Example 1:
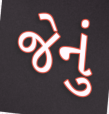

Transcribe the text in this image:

જેનું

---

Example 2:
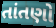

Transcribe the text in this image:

તાંતણો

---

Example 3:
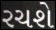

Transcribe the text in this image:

રચશે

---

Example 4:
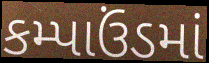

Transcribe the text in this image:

કમ્પાઉંડમાં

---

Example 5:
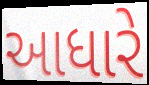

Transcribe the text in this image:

આધારે